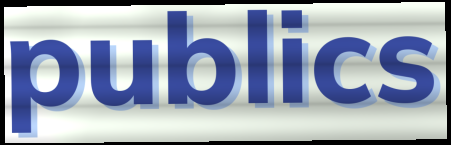
publics